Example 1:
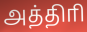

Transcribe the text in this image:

அத்திரி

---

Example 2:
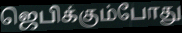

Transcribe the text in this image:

ஜெபிக்கும்போது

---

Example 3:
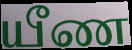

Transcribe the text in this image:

யீண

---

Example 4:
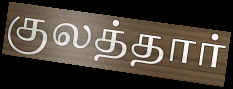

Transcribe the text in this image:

குலத்தார்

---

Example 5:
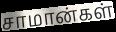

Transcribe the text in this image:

சாமான்கள்